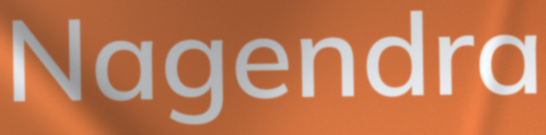
Nagendra